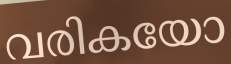
വരികയോ